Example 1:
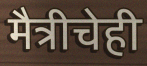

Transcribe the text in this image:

मैत्रीचेही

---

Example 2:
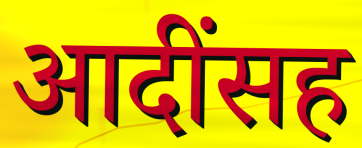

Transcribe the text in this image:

आदींसह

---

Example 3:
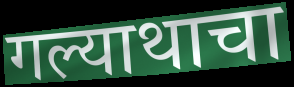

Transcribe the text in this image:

गल्याथाचा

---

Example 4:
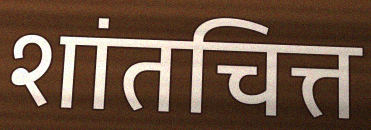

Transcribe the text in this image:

शांतचित्त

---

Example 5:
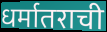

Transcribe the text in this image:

धर्मातराची